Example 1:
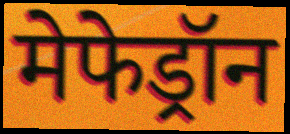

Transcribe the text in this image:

मेफेड्रॉन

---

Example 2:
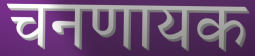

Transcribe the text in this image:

चनणायक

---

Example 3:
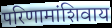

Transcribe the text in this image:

परिणामांशिवाय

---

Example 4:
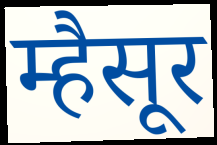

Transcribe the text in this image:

म्हैसूर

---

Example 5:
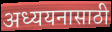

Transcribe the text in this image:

अध्ययनासाठी